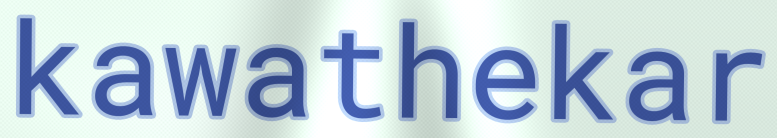
kawathekar